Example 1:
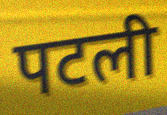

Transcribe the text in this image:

पटली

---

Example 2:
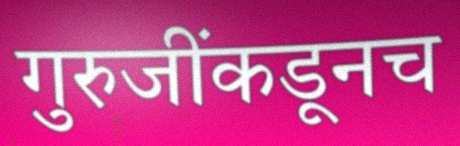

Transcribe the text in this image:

गुरुजींकडूनच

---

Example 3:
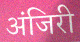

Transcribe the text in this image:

अंजिरी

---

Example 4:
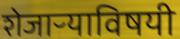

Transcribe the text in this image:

शेजाऱ्याविषयी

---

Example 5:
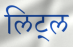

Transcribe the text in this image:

लिट्‌ल